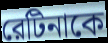
রেটিনাকে